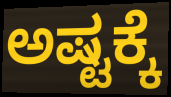
ಅಷ್ಟಕ್ಕೆ